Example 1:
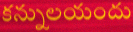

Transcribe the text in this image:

కన్నులయందు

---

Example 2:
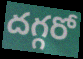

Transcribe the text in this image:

దగ్గరో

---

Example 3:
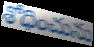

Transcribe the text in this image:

శోధించును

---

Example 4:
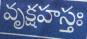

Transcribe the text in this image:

వృక్షహస్తః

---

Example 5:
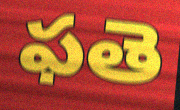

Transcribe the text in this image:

ఫతె